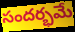
సందర్భమే